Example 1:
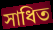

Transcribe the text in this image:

সাধিত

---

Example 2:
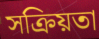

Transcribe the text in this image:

সক্ৰিয়তা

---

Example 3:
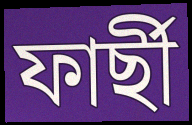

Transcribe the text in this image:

ফাৰ্ছী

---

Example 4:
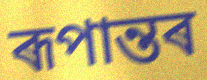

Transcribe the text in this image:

ৰূপান্তৰ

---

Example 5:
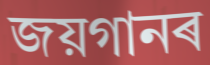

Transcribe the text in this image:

জয়গানৰ